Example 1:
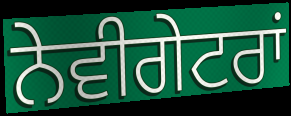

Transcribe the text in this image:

ਨੇਵੀਗੇਟਰਾਂ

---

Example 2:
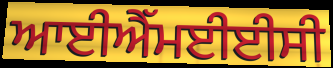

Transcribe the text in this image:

ਆਈਐੱਮਈਈਸੀ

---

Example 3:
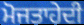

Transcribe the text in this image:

ਮੋਜਤਾਹੇਦੀ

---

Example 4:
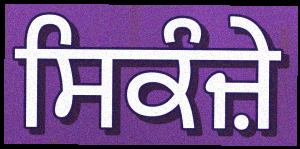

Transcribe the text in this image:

ਸਿਕੰਜ਼ੇ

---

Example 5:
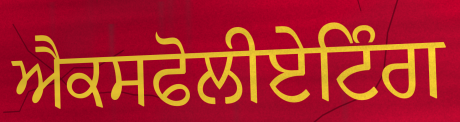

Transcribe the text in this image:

ਐਕਸਫੋਲੀਏਟਿੰਗ